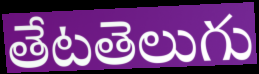
తేటతెలుగు